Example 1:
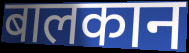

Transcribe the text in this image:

बालकान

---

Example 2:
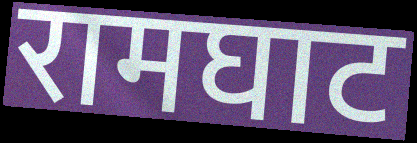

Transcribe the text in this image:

रामघाट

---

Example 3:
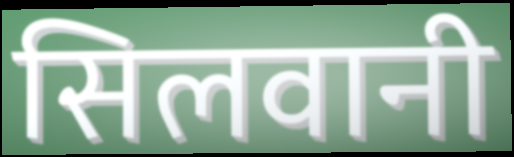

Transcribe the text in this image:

सिलवानी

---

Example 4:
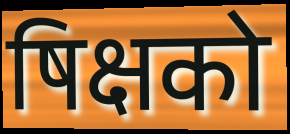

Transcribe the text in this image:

षिक्षको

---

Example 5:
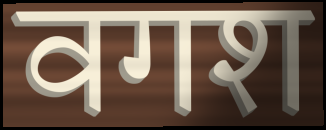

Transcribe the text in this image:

वगश